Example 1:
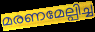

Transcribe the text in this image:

മരണമേല്പിച്ച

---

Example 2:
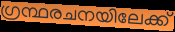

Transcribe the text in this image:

ഗ്രന്ഥരചനയിലേക്ക്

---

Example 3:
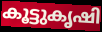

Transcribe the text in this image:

കൂട്ടുകൃഷി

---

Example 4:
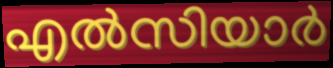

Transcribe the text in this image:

എൽസിയാർ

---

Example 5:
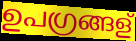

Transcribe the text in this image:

ഉപഗ്രങ്ങള്